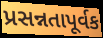
પ્રસન્નતાપૂર્વક